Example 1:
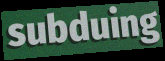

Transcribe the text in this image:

subduing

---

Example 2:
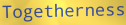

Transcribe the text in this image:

Togetherness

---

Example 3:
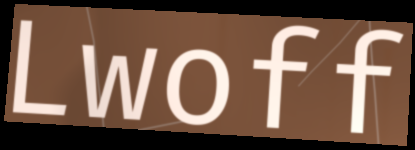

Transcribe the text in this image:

Lwoff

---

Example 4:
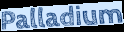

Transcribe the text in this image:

Palladium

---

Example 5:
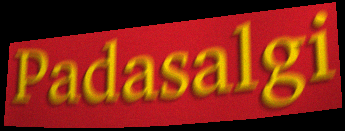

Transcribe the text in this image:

Padasalgi